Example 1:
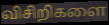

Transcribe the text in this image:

விசிறிகளை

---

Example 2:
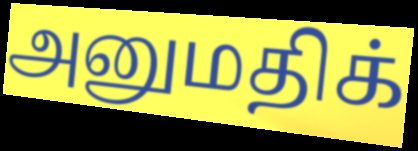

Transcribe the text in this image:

அனுமதிக்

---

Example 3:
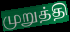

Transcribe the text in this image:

முறுத்தி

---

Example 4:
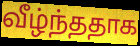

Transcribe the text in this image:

வீழ்ந்ததாக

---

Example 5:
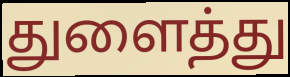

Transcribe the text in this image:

துளைத்து